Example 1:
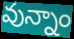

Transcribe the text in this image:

వున్నాం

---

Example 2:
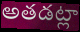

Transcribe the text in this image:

అతడట్లా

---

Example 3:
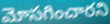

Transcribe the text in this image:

మోసగించారని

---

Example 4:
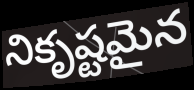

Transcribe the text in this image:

నికృష్టమైన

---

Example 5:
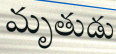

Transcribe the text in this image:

మృతుడు